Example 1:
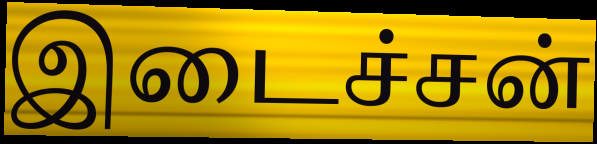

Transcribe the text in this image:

இடைச்சன்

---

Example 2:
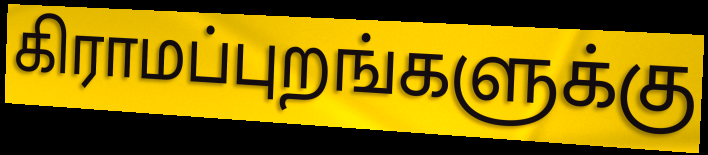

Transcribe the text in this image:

கிராமப்புறங்களுக்கு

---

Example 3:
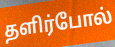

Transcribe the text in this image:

தளிர்போல்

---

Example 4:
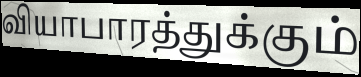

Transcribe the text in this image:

வியாபாரத்துக்கும்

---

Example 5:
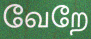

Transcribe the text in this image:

வேறே